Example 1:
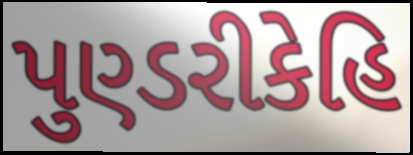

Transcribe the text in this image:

પુણ્ડરીકેહિ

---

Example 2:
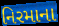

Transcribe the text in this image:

નિરમાના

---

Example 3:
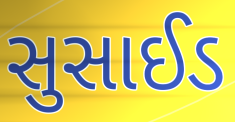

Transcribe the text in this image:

સુસાઈડ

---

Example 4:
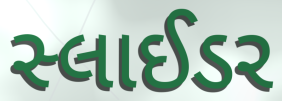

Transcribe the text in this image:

સ્લાઈડર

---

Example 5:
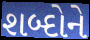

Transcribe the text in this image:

શબ્દોને